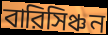
বারিসিঞ্চন